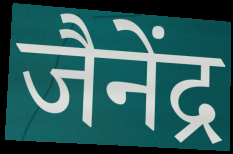
जैनेंद्र